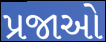
પ્રજાઓ